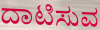
ದಾಟಿಸುವ